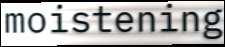
moistening